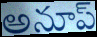
అనూప్